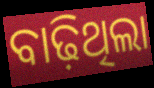
ବାଢ଼ିଥିଲା